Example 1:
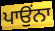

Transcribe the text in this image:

ਪਾਉਂਨਾ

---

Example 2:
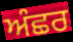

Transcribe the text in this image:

ਅੰਛਰ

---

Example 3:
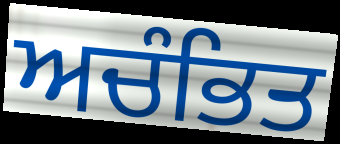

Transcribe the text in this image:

ਅਚੰਭਿਤ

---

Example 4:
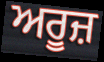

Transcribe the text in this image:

ਅਰੂਜ਼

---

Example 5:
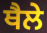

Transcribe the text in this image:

ਥੈਲੇ